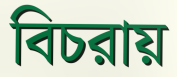
বিচরায়